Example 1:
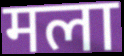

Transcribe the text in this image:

मला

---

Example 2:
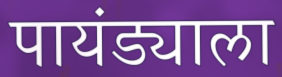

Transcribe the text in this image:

पायंड्याला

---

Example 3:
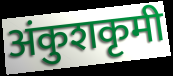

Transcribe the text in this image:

अंकुशकृमी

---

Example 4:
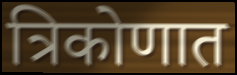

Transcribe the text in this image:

त्रिकोणात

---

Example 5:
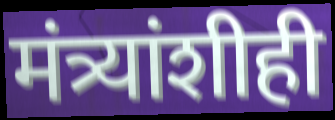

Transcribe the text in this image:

मंत्र्यांशीही